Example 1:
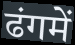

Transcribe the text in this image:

ढंगमें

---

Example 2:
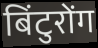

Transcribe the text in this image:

बिंटुरोंग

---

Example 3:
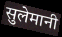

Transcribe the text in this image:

सुलेमानी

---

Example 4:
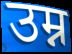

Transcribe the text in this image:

उम्न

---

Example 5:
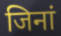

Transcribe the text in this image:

जिनां